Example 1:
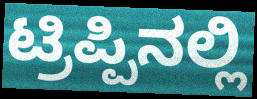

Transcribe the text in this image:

ಟ್ರಿಪ್ಪಿನಲ್ಲಿ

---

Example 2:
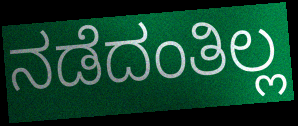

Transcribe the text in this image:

ನಡೆದಂತಿಲ್ಲ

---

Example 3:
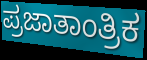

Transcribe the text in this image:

ಪ್ರಜಾತಾಂತ್ರಿಕ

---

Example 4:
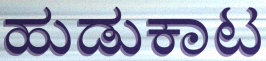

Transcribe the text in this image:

ಹುಡುಕಾಟ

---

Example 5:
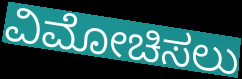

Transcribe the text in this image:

ವಿಮೋಚಿಸಲು